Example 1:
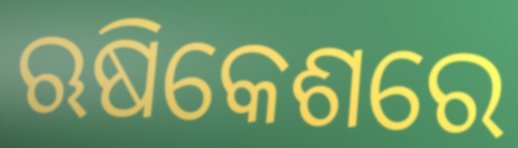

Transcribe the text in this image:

ଋଷିକେଶରେ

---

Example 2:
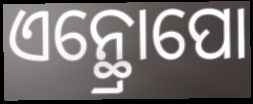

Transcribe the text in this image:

ଏନ୍ଥ୍ରୋପୋ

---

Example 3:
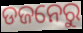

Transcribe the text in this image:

ଡଜନେରୁ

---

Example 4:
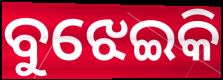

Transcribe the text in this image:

ବୁଝେଇକି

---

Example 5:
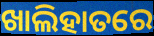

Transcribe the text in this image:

ଖାଲିହାତରେ